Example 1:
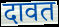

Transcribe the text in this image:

दावत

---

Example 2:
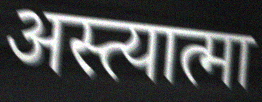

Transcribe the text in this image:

अस्त्यात्मा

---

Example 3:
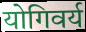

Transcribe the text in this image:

योगिवर्य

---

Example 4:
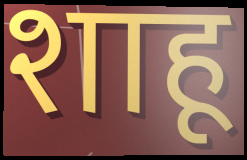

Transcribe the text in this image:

शाहू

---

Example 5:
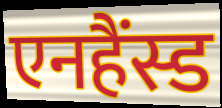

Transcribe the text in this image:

एनहैंस्ड